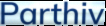
Parthiv